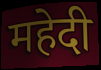
महेदी